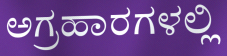
ಅಗ್ರಹಾರಗಳಲ್ಲಿ